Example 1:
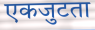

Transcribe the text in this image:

एकजुटता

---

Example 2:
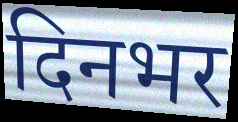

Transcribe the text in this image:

दिनभर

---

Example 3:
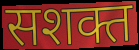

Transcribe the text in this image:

सशक्त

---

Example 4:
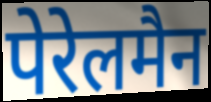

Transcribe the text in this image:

पेरेलमैन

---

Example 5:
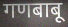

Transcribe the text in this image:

गणबाबू